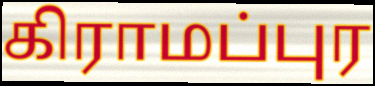
கிராமப்புர